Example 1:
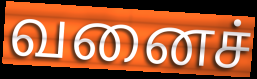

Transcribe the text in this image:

வனைச்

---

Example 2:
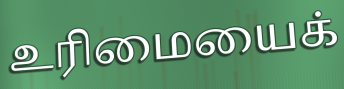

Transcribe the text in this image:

உரிமையைக்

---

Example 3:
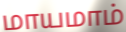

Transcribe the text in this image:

மாயமாம்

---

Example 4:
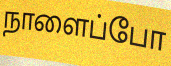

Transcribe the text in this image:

நாளைப்போ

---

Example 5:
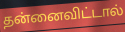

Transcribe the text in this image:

தன்னைவிட்டால்